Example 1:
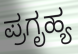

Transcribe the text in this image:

ಪ್ರಗೃಹ್ಯ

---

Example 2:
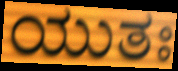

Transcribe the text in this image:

ಯುತಃ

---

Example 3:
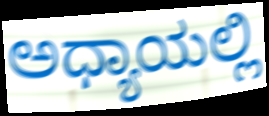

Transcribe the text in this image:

ಅಧ್ಯಾಯಲ್ಲಿ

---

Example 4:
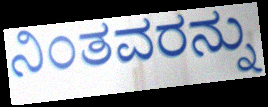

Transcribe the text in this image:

ನಿಂತವರನ್ನು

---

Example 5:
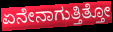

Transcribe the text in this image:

ಏನೇನಾಗುತ್ತಿತ್ತೋ